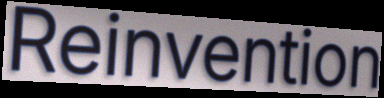
Reinvention